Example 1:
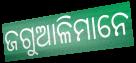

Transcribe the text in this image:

ଜଗୁଆଳିମାନେ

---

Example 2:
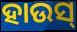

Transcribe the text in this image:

ହାଉସ୍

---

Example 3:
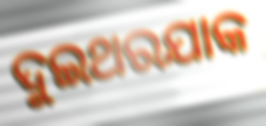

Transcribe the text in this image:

ଦୁଇଥରଯାକ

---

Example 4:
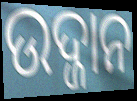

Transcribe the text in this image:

ଉଦ୍ଜାନ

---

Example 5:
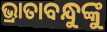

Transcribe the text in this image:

ଭ୍ରାତାବନ୍ଧୁଙ୍କୁ